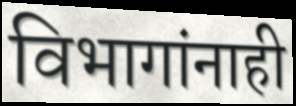
विभागांनाही